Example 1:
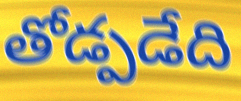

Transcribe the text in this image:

తోడ్పడేది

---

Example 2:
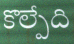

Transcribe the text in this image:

కొల్పేది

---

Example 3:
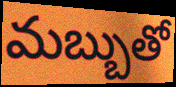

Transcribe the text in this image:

మబ్బుతో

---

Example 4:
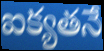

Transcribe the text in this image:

ఐక్యతనే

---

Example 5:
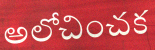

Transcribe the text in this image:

అలోచించక